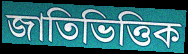
জাতিভিত্তিক